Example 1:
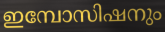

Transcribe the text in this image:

ഇമ്പോസിഷനും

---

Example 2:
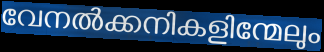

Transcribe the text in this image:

വേനൽക്കനികളിന്മേലും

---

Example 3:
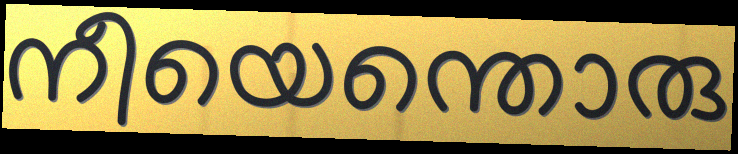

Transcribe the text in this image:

നീയെന്തൊരു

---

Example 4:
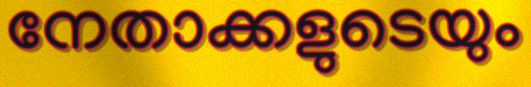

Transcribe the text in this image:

നേതാക്കളുടെയും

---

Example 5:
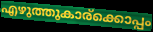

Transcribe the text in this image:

എഴുത്തുകാര്ക്കൊപ്പം